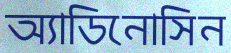
অ্যাডিনোসিন